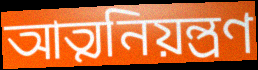
আত্মনিয়ন্ত্ৰণ